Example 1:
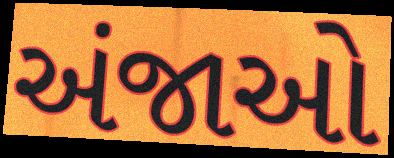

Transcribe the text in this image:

અંજાઓ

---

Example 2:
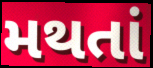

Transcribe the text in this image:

મથતાં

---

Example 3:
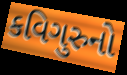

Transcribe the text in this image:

કવિગુરુનો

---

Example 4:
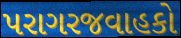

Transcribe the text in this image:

પરાગરજવાહકો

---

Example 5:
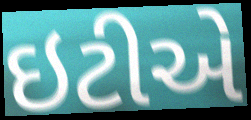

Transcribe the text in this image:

ઇટીએ